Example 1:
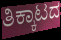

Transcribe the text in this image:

ತಿಕ್ಕಾಟದ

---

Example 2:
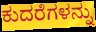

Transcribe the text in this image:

ಕುದರೆಗಳನ್ನು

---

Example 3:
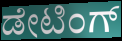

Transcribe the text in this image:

ಡೇಟಿಂಗ್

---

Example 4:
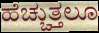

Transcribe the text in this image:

ಹೆಚ್ಚುತ್ತಲೂ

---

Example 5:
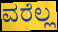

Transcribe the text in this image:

ವರೆಲ್ಲ